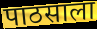
पाठसाला